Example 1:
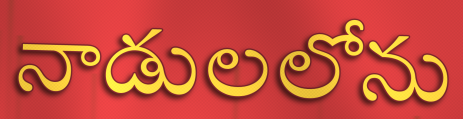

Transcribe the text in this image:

నాడులలోను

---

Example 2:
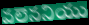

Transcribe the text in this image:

వలెననియు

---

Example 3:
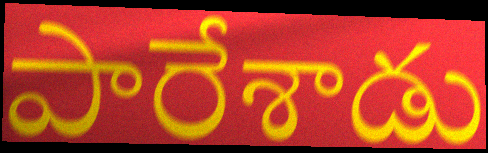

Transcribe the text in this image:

పారేశాడు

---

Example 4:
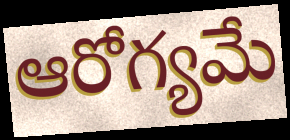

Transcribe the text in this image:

ఆరోగ్యమే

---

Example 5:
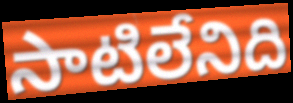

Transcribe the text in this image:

సాటిలేనిది